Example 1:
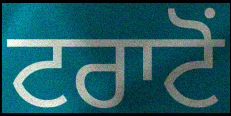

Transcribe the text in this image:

ਟਰਾਟੋਂ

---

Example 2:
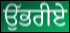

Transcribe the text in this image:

ਉੱਭਰੀਏ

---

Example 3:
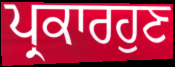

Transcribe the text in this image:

ਪ੍ਰਕਾਰਹੁਣ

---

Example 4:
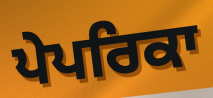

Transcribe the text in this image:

ਪੇਪਰਿਕਾ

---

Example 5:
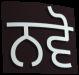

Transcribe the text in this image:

ਨਵੋ